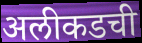
अलीकडची